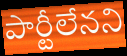
పార్టీలేనని